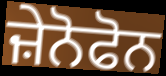
ਜ਼ੇਨੋਫੋਨ